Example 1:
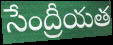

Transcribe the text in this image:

సేంద్రీయత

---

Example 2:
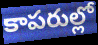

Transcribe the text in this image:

కాపరుల్లో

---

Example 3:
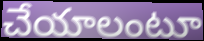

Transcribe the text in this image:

చేయాలంటూ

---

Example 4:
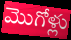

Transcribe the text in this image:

మొగోళ్లు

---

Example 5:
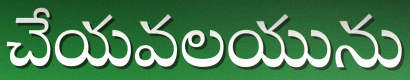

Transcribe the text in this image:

చేయవలయును